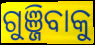
ଗୁଞ୍ଜିବାକୁ